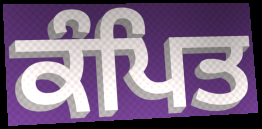
ਕੰਪਿਤ